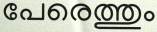
പേരെത്തും